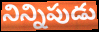
నిన్నిపుడు